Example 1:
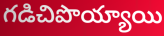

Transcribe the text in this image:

గడిచిపొయ్యాయి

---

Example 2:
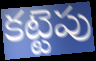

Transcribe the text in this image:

కట్టెపు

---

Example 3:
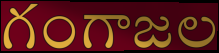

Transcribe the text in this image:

గంగాజల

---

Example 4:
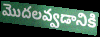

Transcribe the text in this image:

మొదలవ్వడానికి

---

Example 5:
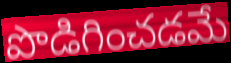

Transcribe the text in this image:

పొడిగించడమే